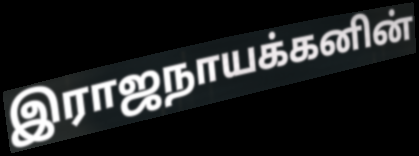
இராஜநாயக்கனின்